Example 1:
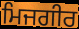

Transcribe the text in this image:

ਮਿਜਗੀਰ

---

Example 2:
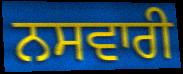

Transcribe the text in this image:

ਨਸਵਾਰੀ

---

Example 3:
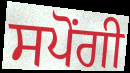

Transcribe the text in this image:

ਸਪੋਂਗੀ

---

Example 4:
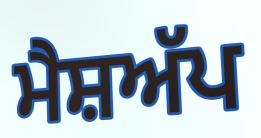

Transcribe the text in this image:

ਮੈਸ਼ਅੱਪ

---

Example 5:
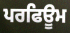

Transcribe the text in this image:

ਪਰਫਿਊਮ